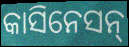
କାସିନେସନ୍